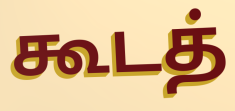
கூடத்